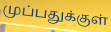
முப்பதுக்குள்